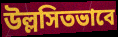
উল্লসিতভাবে